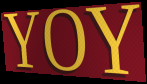
YOY